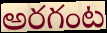
అరగంట